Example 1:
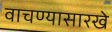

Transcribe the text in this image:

वाचण्यासारखे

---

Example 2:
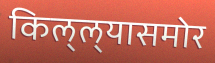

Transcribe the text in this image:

किल्ल्यासमोर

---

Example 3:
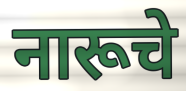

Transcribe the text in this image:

नारूचे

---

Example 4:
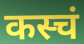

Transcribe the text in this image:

कस्चं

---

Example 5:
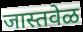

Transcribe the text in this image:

जास्तवेळ